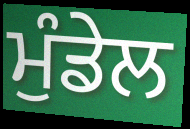
ਮੁੰਡੇਲ